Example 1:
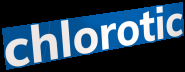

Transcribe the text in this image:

chlorotic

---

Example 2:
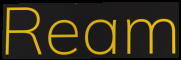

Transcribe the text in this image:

Ream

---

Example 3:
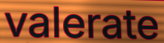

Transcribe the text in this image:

valerate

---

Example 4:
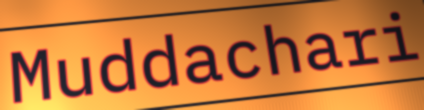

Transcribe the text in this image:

Muddachari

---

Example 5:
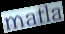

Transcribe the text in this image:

matla